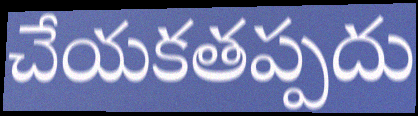
చేయకతప్పదు